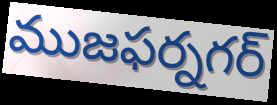
ముజఫర్నగర్